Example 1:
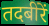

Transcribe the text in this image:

तदबीरें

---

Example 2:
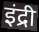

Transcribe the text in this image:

इंद्री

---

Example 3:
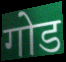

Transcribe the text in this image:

गोड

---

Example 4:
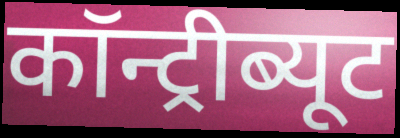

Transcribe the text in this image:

कॉन्ट्रीब्यूट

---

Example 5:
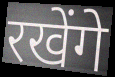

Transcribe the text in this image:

रखेंगे